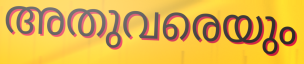
അതുവരെയും